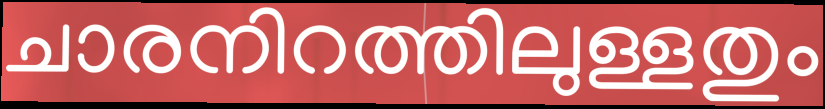
ചാരനിറത്തിലുള്ളതും